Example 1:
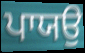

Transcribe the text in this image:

ਪਾਯਉ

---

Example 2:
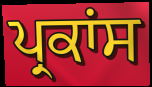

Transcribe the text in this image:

ਪ੍ਰਕਾਂਸ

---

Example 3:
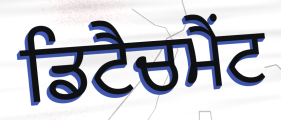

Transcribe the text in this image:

ਡਿਟੈਚਮੈਂਟ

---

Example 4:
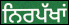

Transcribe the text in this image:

ਨਿਰਪੱਖਾਂ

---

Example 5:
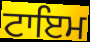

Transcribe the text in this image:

ਟਾਇਮ